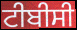
ਟੀਬੀਸੀ